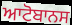
ਆਟੋਬਾਨਸ